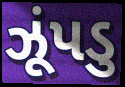
ઝૂંપડુ